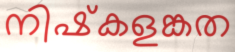
നിഷ്‌കളങ്കത